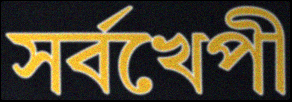
সর্বখেপী